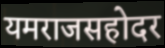
यमराजसहोदर